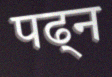
पढ्न